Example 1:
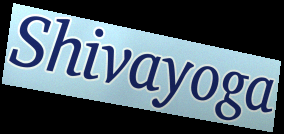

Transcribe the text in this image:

Shivayoga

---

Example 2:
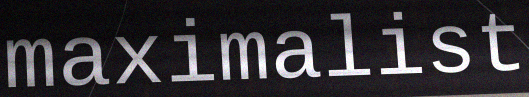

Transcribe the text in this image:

maximalist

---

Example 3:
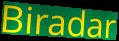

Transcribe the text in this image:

Biradar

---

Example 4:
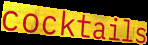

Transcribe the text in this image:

cocktails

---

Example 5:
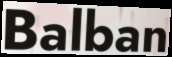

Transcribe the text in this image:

Balban